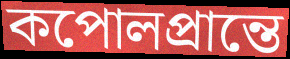
কপোলপ্রান্তে